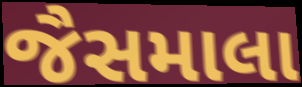
જૈસમાલા